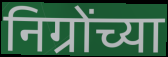
निग्रोंच्या